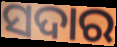
ସଦାର